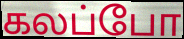
கலப்போ